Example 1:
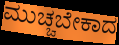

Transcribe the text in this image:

ಮುಚ್ಚಬೇಕಾದ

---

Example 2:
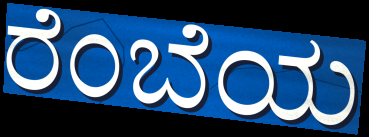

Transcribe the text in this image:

ರೆಂಬೆಯ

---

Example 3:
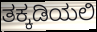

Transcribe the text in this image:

ತಕ್ಕಡಿಯಲಿ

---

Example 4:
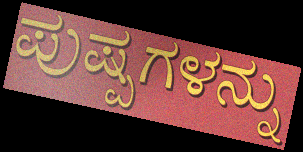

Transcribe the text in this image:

ಪುಷ್ಪಗಳನ್ನು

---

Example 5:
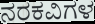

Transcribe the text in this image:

ನರಕವಿಗಳ